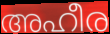
അഹീര